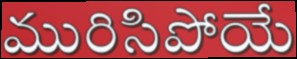
మురిసిపోయే